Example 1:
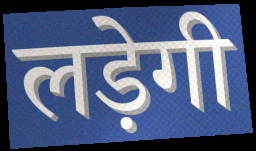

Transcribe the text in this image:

लड़ेगी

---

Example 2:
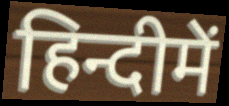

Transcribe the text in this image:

हिन्दीमें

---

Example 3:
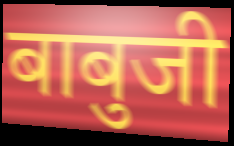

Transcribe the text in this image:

बाबुजी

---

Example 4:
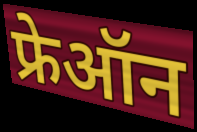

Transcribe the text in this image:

फ्रेऑन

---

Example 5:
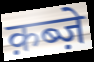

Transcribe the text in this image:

क़ब्ज़े